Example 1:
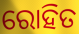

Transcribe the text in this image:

ରୋହିତ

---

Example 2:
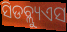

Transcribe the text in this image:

ସିଡବ୍ଲ୍ୟୁଏସ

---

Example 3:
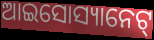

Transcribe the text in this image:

ଆଇସୋସ୍ୟାନେଟ୍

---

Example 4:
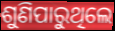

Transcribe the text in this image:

ଶୁଣିପାରୁଥିଲେ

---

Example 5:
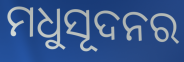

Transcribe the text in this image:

ମଧୁସୂଦନର